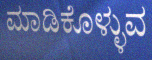
ಮಾಡಿಕೊಳ್ಳುವ